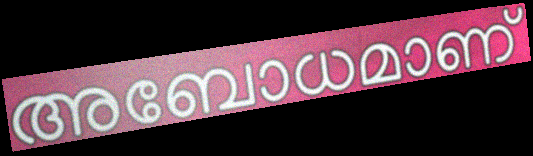
അബോധമാണ്